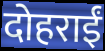
दोहराईं